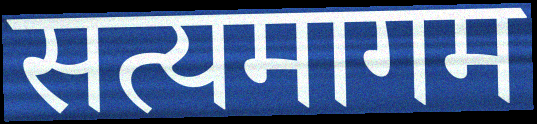
सत्यमागम